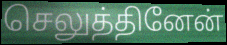
செலுத்தினேன்